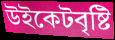
উইকেটবৃষ্টি